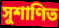
সুশাণিত